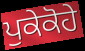
ਪੁਕੇਕੋਹੇ